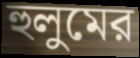
হুলুমের